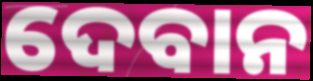
ଦେବାନ